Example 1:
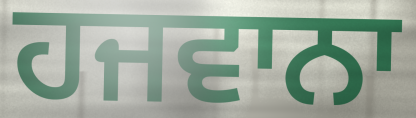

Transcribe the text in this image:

ਹਜਵਾਨਾ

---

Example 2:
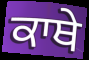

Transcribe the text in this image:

ਕਾਥੇ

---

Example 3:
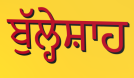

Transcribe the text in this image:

ਬੁੱਲ੍ਹੇਸ਼ਾਹ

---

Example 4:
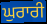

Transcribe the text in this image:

ਘੁਰਾਰੀ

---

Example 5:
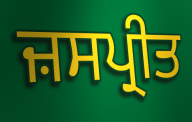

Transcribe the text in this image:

ਜ਼ਸਪ੍ਰੀਤ